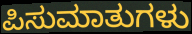
ಪಿಸುಮಾತುಗಳು